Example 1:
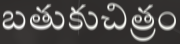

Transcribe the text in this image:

బతుకుచిత్రం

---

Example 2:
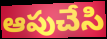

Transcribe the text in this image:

ఆపుచేసి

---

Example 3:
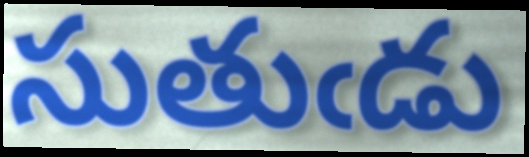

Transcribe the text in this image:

సుతుఁడు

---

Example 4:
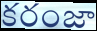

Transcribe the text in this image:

కరంజా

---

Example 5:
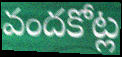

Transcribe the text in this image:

వందకోట్ల